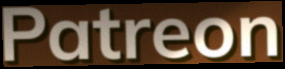
Patreon